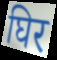
घिर